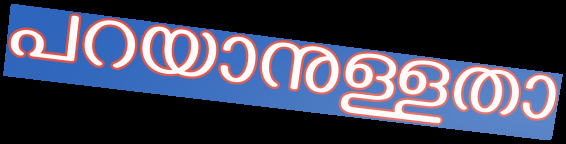
പറയാനുള്ളതാ